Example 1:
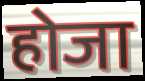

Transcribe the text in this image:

होजा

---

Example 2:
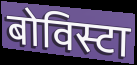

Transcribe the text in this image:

बोविस्टा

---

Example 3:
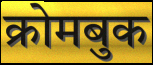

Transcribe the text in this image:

क्रोमबुक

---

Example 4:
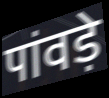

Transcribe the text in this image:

पांवड़े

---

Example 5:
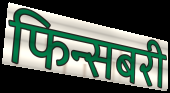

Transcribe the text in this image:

फिन्सबरी